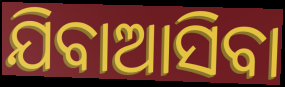
ଯିବାଆସିବା